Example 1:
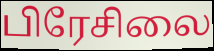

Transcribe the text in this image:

பிரேசிலை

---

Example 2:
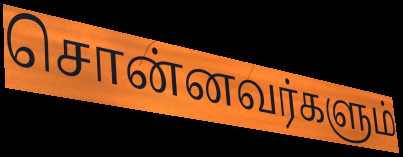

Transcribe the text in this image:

சொன்னவர்களும்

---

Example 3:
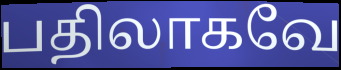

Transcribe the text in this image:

பதிலாகவே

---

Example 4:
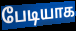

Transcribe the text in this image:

பேடியாக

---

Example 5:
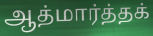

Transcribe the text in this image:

ஆத்மார்த்தக்